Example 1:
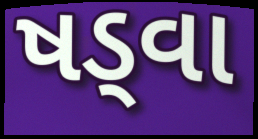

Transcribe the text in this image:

ષડ્વા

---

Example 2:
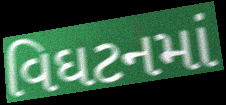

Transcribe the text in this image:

વિઘટનમાં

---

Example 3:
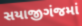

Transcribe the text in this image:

સયાજીગંજમાં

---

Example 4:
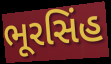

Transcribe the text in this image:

ભૂરસિંહ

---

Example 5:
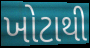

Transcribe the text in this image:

ખોટાથી